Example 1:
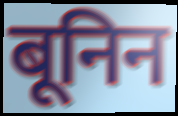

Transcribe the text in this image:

बूनिन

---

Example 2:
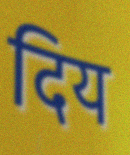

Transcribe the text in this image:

दिय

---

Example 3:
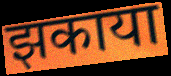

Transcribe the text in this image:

झकाया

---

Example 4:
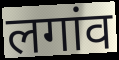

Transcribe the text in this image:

लगांव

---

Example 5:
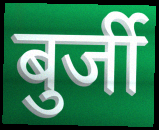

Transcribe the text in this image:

बुर्जी